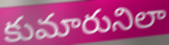
కుమారునిలా